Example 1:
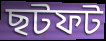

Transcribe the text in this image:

ছটফট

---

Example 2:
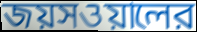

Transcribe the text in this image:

জয়সওয়ালের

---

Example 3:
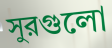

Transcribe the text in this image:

সুরগুলো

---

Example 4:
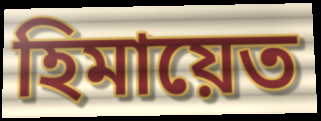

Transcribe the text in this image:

হিমায়েত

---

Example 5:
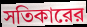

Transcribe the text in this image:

সতিকারের